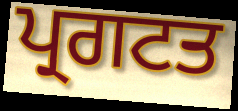
ਪ੍ਰਗਟਤ